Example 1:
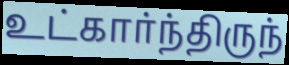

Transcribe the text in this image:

உட்கார்ந்திருந்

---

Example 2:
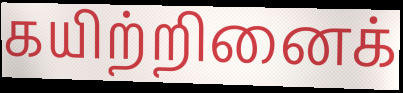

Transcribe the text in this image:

கயிற்றினைக்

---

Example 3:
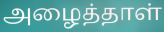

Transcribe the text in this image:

அழைத்தாள்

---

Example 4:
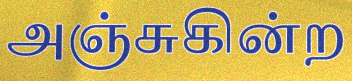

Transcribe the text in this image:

அஞ்சுகின்ற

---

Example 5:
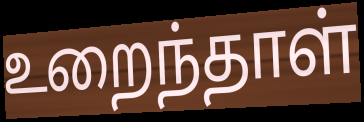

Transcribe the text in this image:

உறைந்தாள்